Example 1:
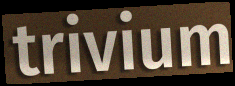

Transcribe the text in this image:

trivium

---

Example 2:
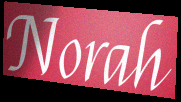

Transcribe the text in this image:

Norah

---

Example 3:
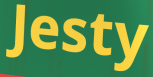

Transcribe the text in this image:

Jesty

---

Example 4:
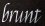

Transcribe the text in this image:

brunt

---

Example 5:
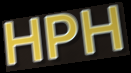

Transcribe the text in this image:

HPH